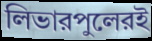
লিভারপুলেরই